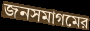
জনসমাগমের